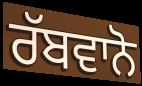
ਰੱਬਵਾਨੋ